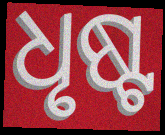
ଧୃଷ୍ଟ